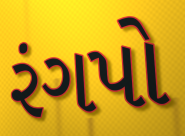
રંગપો